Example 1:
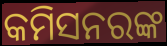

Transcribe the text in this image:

କମିସନରଙ୍କ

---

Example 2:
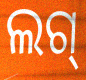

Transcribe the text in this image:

ଲଗ୍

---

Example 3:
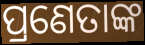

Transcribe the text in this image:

ପ୍ରଣେତାଙ୍କ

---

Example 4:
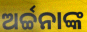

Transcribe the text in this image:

ଅର୍ଚ୍ଚନାଙ୍କ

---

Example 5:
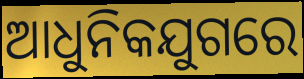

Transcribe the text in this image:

ଆଧୁନିକଯୁଗରେ